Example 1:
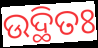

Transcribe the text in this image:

ଉଦ୍ଥିତଃ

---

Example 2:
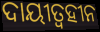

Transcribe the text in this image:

ଦାୟୀତ୍ୱହୀନ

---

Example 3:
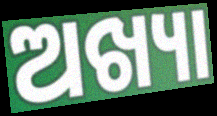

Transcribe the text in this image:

ଅଖ୍ୟା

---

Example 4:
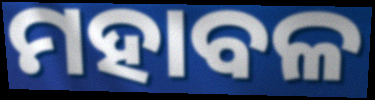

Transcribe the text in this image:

ମହାବଳ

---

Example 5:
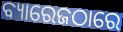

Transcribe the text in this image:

ବ୍ୟାରେଜଠାରେ